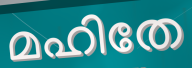
മഹിതേ